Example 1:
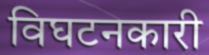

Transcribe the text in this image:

विघटनकारी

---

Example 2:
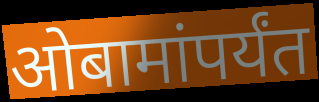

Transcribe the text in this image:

ओबामांपर्यंत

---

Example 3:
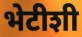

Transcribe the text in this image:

भेटीशी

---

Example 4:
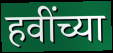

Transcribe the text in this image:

हवींच्या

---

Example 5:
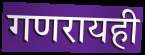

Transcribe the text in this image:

गणरायही